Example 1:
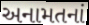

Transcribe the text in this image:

અનામતનાં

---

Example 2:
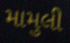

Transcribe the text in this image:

મામુલી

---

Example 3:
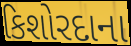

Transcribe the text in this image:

કિશોરદાના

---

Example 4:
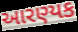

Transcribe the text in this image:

આરણ્યક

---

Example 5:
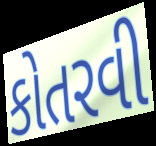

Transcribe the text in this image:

કોતરવી